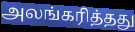
அலங்கரித்தது